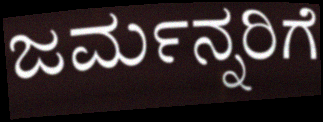
ಜರ್ಮನ್ನರಿಗೆ